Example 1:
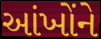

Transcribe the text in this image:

આંખોંને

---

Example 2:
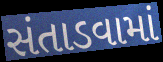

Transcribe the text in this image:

સંતાડવામાં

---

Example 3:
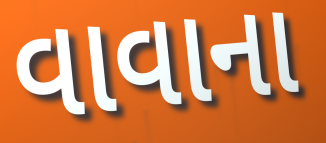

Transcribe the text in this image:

વાવાના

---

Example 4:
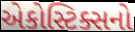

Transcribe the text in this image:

એકોસ્ટિક્સનો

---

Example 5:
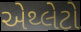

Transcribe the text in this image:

એથ્લેટો